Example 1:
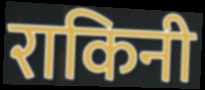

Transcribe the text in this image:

राकिनी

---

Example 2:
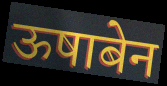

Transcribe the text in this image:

ऊषाबेन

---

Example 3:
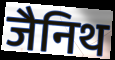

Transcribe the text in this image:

जैनिथ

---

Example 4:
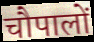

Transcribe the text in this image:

चौपालों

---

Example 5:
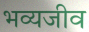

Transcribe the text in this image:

भव्यजीव